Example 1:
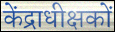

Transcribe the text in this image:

केंद्राधीक्षकों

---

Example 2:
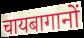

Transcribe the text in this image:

चायबागानों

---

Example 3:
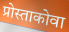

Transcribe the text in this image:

प्रोस्ताकोवा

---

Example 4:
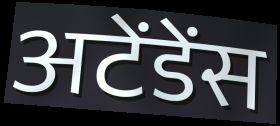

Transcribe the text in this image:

अटेंडेंस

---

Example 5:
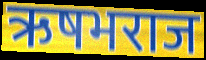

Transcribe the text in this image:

ऋषभराज